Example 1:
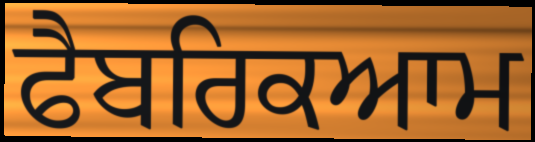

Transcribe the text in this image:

ਫੈਬਰਿਕਆਮ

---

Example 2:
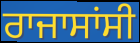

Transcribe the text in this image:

ਰਾਜਾਸਾਂਸੀ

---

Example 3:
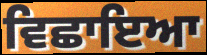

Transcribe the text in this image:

ਵਿਛਾਇਆ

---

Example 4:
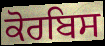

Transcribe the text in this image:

ਕੋਰਬਿਸ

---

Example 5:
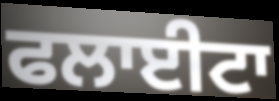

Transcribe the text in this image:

ਫਲਾਈਟਾ